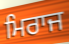
ਮਿਰਾਜ